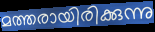
മത്തരായിരിക്കുന്നു